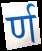
र्ण